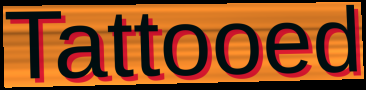
Tattooed